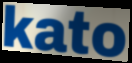
kato